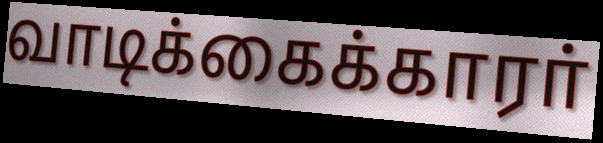
வாடிக்கைக்காரர்